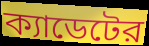
ক্যাডেটের